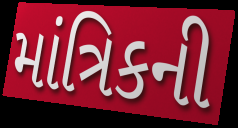
માંત્રિકની